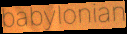
babylonian